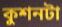
কুশনটা